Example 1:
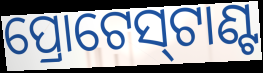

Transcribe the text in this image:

ପ୍ରୋଟେସ୍‌ଟାଣ୍ଟ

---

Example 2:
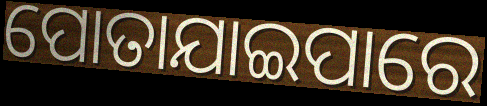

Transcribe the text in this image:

ପୋତାଯାଇପାରେ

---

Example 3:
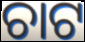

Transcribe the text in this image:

ଚାଟ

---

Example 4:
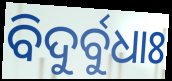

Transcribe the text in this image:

ବିଦୁର୍ବୁଧାଃ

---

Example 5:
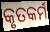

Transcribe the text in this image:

କୃତକର୍ମ